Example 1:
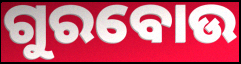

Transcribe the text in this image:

ଗୁରବୋଉ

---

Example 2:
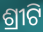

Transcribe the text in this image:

ଶ୍ରୀଟି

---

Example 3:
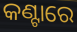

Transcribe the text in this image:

କଣ୍ଟାରେ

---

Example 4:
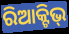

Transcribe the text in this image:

ରିଆକ୍ଟିଭ୍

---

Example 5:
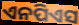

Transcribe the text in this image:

ଏନପିଏସ